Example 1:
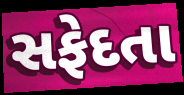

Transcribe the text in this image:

સફેદતા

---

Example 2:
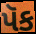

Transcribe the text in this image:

પૅક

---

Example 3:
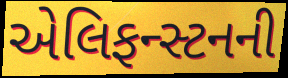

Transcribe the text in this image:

એલિફન્સ્ટનની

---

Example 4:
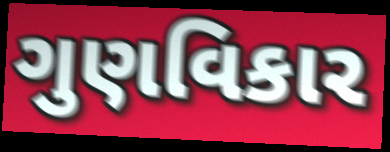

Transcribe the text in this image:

ગુણવિકાર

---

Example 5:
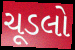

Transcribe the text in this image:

ચૂડલો